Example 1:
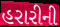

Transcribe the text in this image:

હરારીની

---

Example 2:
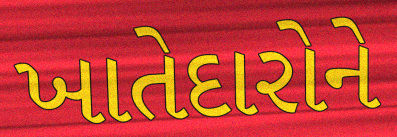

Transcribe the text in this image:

ખાતેદારોને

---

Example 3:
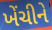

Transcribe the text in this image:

ખેંચીને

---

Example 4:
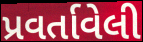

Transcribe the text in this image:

પ્રવર્તાવેલી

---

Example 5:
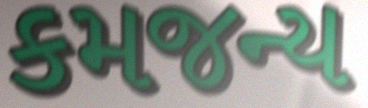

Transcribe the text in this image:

કમજન્ય